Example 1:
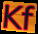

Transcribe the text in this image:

Kf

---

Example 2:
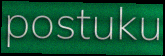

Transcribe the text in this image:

postuku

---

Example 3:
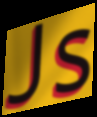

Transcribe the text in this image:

Js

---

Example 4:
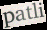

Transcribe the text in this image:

patli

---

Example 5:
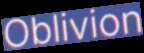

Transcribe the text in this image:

Oblivion